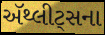
ઍથ્લીટ્સના